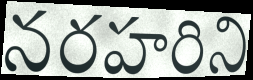
నరహరిని